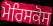
ਮੋਰਿਸਕੋਸ